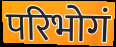
परिभोगं